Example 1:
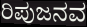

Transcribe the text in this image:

ರಿಪುಜನವ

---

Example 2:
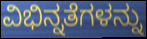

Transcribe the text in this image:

ವಿಭಿನ್ನತೆಗಳನ್ನು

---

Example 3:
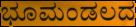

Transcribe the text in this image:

ಭೂಮಂಡಲದ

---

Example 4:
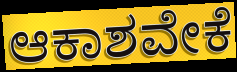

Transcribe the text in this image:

ಆಕಾಶವೇಕೆ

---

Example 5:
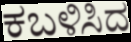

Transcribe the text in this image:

ಕಬಳಿಸಿದ